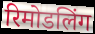
रिमोडलिंग